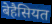
बेहैसियत